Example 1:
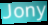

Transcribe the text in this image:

Jony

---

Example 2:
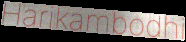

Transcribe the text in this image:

Harikambodhi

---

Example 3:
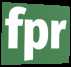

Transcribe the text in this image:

fpr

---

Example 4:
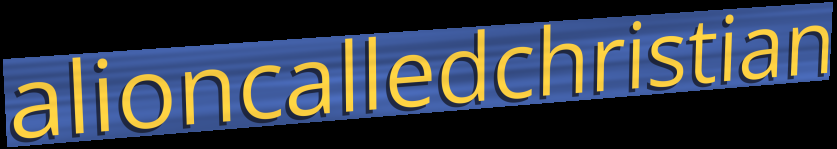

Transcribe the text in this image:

alioncalledchristian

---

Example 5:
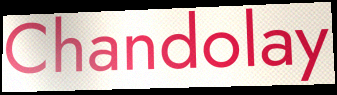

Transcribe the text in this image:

Chandolay